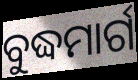
ବୁଦ୍ଧମାର୍ଗ